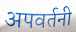
अपवर्तनी